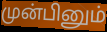
முன்பினும்